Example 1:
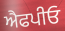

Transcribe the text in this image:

ਐਫਪੀਓ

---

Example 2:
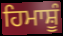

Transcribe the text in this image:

ਹਿਮਾਸ਼ੂੰ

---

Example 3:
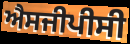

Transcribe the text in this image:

ਐਸਜੀਪੀਸੀ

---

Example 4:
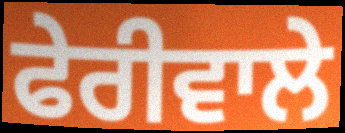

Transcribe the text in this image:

ਫੇਰੀਵਾਲੇ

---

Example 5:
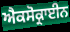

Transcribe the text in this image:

ਐਕਸੋਕ੍ਰਾਈਨ